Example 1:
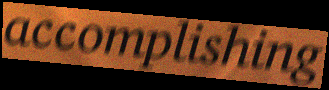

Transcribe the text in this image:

accomplishing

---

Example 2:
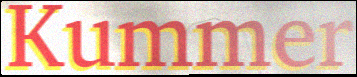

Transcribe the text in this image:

Kummer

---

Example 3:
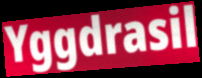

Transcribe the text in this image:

Yggdrasil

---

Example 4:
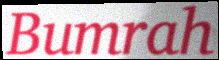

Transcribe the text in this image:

Bumrah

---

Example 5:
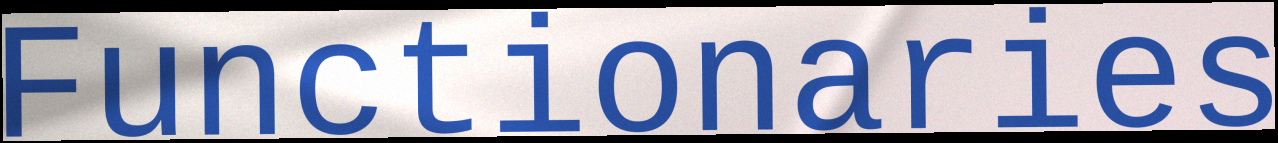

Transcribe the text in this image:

Functionaries